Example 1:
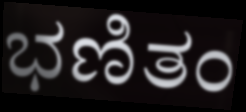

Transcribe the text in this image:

ಭಣಿತಂ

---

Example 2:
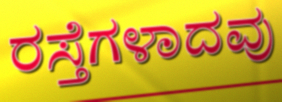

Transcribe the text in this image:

ರಸ್ತೆಗಳಾದವು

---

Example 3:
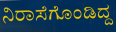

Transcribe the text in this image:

ನಿರಾಸೆಗೊಂಡಿದ್ದ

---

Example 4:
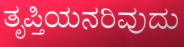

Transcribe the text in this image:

ತೃಪ್ತಿಯನರಿವುದು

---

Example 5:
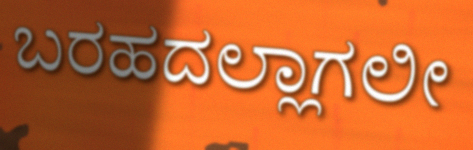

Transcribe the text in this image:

ಬರಹದಲ್ಲಾಗಲೀ